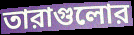
তারাগুলোর